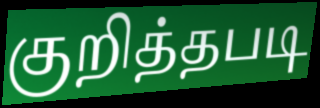
குறித்தபடி